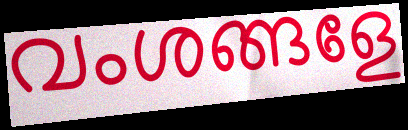
വംശങ്ങളേ